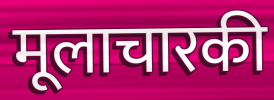
मूलाचारकी